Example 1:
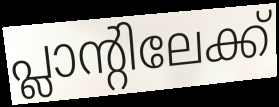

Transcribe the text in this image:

പ്ലാന്റിലേക്ക്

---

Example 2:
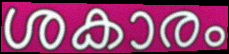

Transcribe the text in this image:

ശകാരം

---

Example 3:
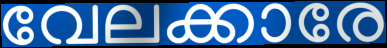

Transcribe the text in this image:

വേലക്കാരേ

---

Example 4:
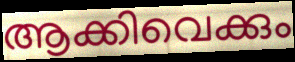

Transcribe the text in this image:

ആക്കിവെക്കും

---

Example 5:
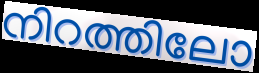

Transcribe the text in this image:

നിറത്തിലോ